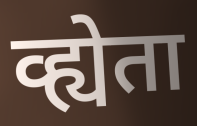
व्ह्येता